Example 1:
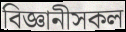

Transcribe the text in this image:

বিজ্ঞানীসকল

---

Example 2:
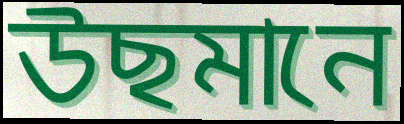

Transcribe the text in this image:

উছমানে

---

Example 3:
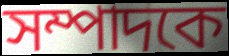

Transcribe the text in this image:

সম্পাদকে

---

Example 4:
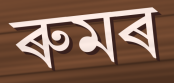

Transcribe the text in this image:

ৰুমৰ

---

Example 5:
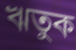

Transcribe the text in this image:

ঋতুক